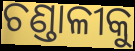
ଚଣ୍ଡାଳୀକୁ